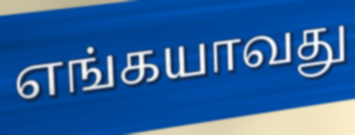
எங்கயாவது